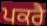
ਪਕਰੈ